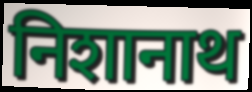
निशानाथ